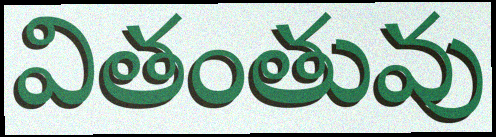
వితంతువు